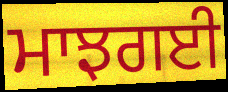
ਮਾਝਗਈ